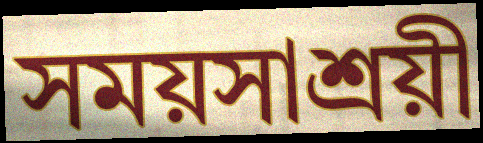
সময়সাশ্রয়ী